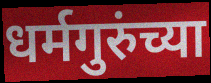
धर्मगुरुंच्या